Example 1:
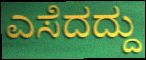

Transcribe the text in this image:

ಎಸೆದದ್ದು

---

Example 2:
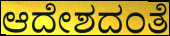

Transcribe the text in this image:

ಆದೇಶದಂತೆ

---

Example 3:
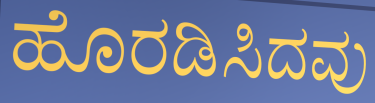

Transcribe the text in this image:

ಹೊರಡಿಸಿದವು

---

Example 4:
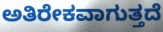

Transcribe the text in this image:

ಅತಿರೇಕವಾಗುತ್ತದೆ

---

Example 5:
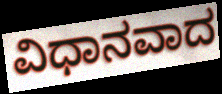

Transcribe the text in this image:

ವಿಧಾನವಾದ